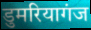
डुमरियागंज